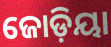
ଜୋଡ଼ିୟା